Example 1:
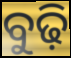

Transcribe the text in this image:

ବୁଢ଼ି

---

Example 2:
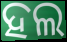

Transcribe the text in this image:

ହଲ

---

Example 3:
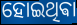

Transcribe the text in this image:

ହୋଇଥିଵା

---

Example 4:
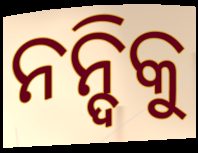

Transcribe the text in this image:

ନନ୍ଦିକୁ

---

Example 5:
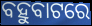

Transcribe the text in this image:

ବହୁବାଟରେ